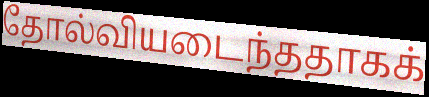
தோல்வியடைந்ததாகக்